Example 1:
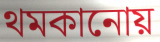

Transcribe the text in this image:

থমকানোয়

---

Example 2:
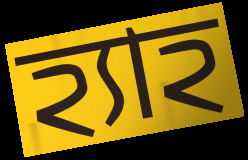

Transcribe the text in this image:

হ্যাহ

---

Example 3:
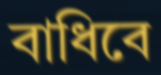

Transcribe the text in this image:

বাধিবে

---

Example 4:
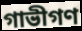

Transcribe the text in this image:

গাভীগণ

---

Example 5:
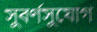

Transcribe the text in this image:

সুবর্ণসুযোগ